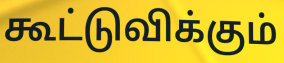
கூட்டுவிக்கும்